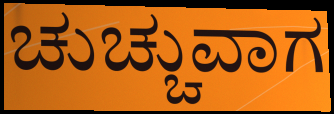
ಚುಚ್ಚುವಾಗ